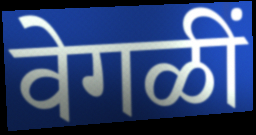
वेगळीं